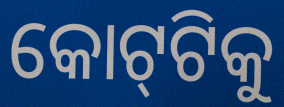
କୋଟ୍‌ଟିକୁ